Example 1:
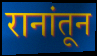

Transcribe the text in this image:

रानांतून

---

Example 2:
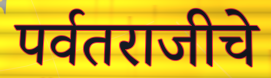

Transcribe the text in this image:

पर्वतराजीचे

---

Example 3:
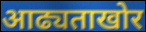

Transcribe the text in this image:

आढ्यताखोर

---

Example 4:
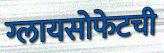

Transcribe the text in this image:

ग्लायसोफेटची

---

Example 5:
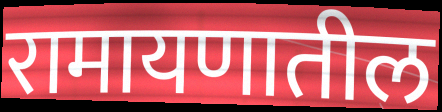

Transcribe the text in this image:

रामायणातील